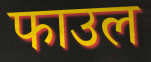
फाउल